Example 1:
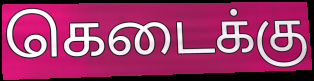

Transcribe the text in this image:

கெடைக்கு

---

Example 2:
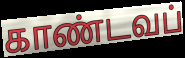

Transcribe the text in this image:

காண்டவப்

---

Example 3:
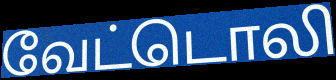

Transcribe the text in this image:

வேட்டொலி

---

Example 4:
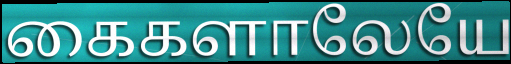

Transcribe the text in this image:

கைகளாலேயே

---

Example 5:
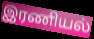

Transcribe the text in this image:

இரணியல்